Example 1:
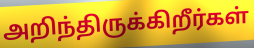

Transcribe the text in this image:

அறிந்திருக்கிறீர்கள்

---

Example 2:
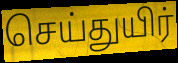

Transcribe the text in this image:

செய்துயிர்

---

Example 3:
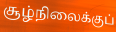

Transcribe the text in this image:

சூழ்நிலைக்குப்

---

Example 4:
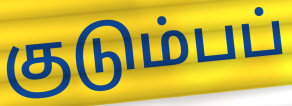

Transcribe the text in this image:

குடும்பப்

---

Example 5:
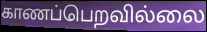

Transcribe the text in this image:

காணப்பெறவில்லை